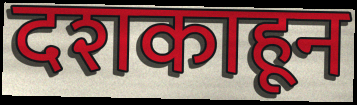
दशकाहून